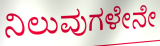
ನಿಲುವುಗಳೇನೇ